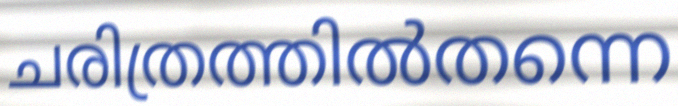
ചരിത്രത്തിൽതന്നെ